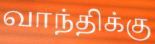
வாந்திக்கு